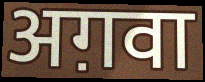
अग़वा